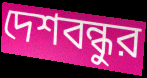
দেশবন্ধুর